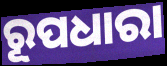
ରୂପଧାରା